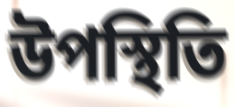
উপস্থিতি